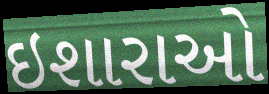
ઇશારાઓ